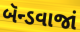
બૅન્ડવાજાં